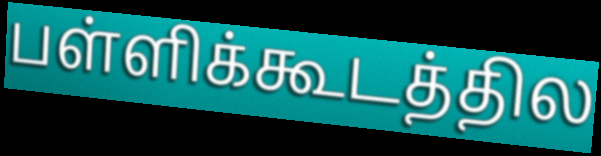
பள்ளிக்கூடத்தில